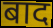
बाद